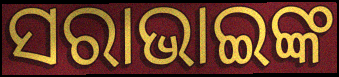
ସରାଭାଇଙ୍କ